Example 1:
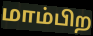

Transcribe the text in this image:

மாம்பிற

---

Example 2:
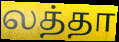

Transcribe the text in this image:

லத்தா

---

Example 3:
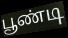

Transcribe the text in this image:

பூண்டி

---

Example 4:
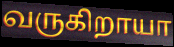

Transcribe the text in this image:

வருகிறாயா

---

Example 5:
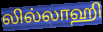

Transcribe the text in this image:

லில்லாஹி